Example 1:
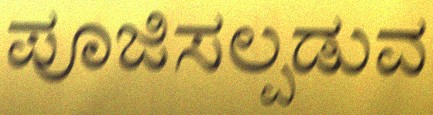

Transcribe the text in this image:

ಪೂಜಿಸಲ್ಪಡುವ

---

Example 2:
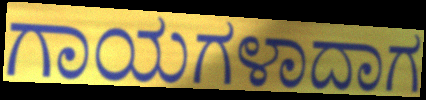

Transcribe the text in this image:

ಗಾಯಗಳಾದಾಗ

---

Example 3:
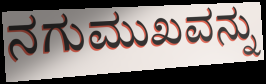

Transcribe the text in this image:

ನಗುಮುಖವನ್ನು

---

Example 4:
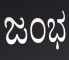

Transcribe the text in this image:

ಜಂಭ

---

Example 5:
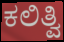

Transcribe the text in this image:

ಕಲಿತ್ವಿ